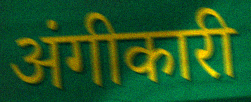
अंगीकारी